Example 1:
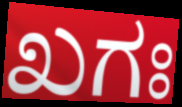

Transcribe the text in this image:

ಖಗಃ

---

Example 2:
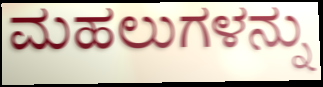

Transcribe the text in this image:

ಮಹಲುಗಳನ್ನು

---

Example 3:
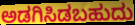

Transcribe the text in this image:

ಅಡಗಿಸಿಡಬಹುದು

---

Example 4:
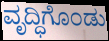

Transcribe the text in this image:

ವೃದ್ಧಿಗೊಂಡು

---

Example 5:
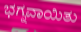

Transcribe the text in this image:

ಭಗ್ನವಾಯಿತು